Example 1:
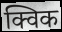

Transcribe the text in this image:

क्विक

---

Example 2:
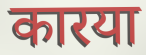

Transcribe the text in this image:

कारया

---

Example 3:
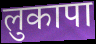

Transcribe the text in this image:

लुकापा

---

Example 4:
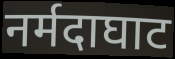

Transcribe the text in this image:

नर्मदाघाट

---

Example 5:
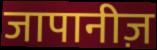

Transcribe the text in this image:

जापानीज़